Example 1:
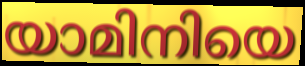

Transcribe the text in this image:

യാമിനിയെ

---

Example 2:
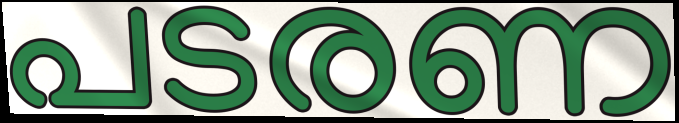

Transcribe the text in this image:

പടരണ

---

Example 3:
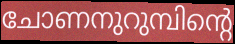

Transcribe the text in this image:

ചോണനുറുമ്പിന്റെ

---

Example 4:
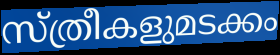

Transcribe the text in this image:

സ്ത്രീകളുമടക്കം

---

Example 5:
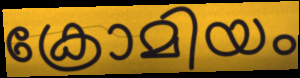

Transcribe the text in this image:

ക്രോമിയം